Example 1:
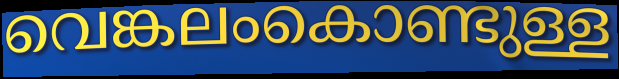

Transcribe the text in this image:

വെങ്കലംകൊണ്ടുള്ള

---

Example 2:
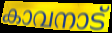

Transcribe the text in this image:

കാവനാട്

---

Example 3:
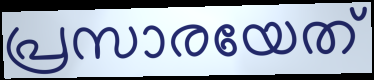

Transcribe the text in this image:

പ്രസാരയേത്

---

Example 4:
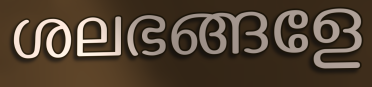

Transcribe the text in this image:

ശലഭങ്ങളേ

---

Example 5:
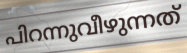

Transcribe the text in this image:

പിറന്നുവീഴുന്നത്